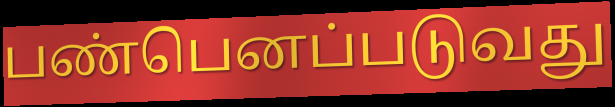
பண்பெனப்படுவது